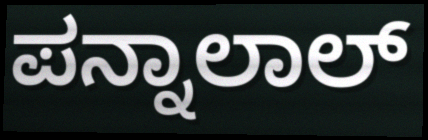
ಪನ್ನಾಲಾಲ್